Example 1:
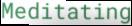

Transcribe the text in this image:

Meditating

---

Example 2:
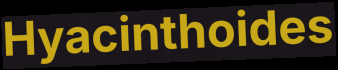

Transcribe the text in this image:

Hyacinthoides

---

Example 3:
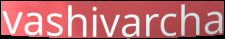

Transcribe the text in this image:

vashivarcha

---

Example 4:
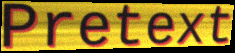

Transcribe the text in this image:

Pretext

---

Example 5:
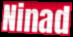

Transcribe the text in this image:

Ninad